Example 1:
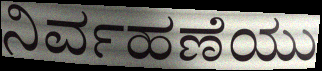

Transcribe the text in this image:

ನಿರ್ವಹಣೆಯು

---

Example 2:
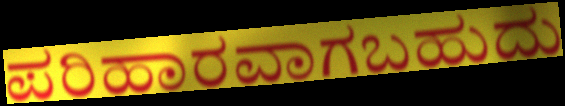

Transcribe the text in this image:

ಪರಿಹಾರವಾಗಬಹುದು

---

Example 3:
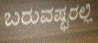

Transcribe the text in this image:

ಬರುವಷ್ಟರಲ್ಲಿ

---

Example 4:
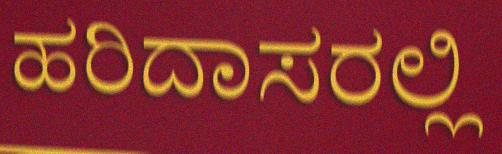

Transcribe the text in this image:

ಹರಿದಾಸರಲ್ಲಿ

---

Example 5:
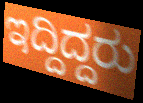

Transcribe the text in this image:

ಇದ್ದಿದ್ದರು